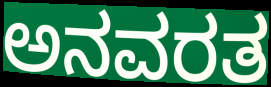
ಅನವರತ